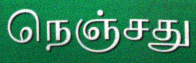
நெஞ்சது